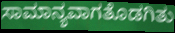
ಸಾಮಾನ್ಯವಾಗತೊಡಗಿತು